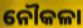
ନୌକଳା